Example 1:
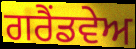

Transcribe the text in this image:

ਗਰੈਂਡਵੇਅ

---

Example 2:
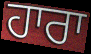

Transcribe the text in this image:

ਹਾਰਾ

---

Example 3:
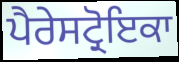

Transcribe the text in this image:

ਪੈਰੇਸਟ੍ਰੋਇਕਾ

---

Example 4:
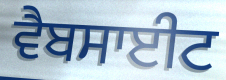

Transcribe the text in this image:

ਵੈਬਸਾਈਟ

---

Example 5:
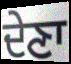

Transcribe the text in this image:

ਦੇਣਾ